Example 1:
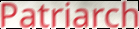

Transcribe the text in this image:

Patriarch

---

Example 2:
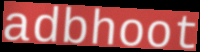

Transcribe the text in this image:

adbhoot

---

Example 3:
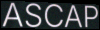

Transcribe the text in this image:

ASCAP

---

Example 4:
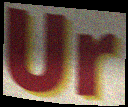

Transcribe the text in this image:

Ur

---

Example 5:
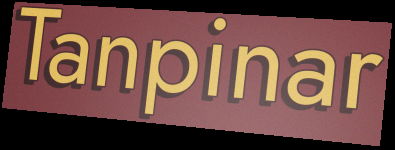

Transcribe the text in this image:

Tanpinar